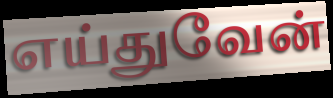
எய்துவேன்